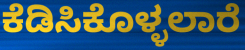
ಕೆಡಿಸಿಕೊಳ್ಳಲಾರೆ